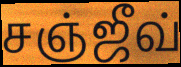
சஞ்ஜீவ்